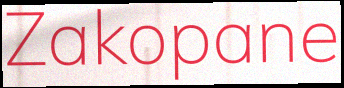
Zakopane